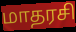
மாதரசி